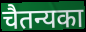
चैतन्यका